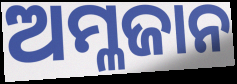
ଅମ୍ଳଜାନ